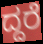
ದ್ದರೆ